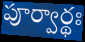
పూర్వార్థః